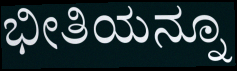
ಭೀತಿಯನ್ನೂ